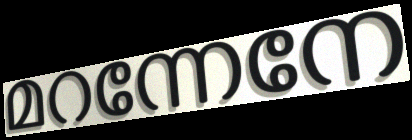
മറന്നേനേ